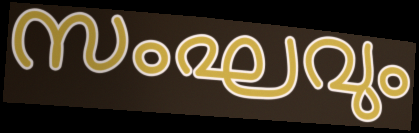
സംഘവും